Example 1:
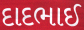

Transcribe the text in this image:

દાદભાઈ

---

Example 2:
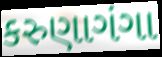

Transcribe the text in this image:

કરુણાગંગા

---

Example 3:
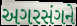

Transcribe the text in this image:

અગરસંગને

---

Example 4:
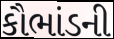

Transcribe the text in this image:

કૌભાંડની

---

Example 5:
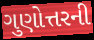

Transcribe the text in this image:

ગુણોત્તરની